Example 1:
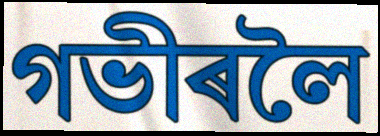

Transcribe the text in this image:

গভীৰলৈ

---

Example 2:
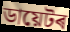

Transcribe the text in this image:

ডায়েটৰ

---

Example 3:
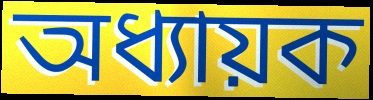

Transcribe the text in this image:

অধ্যায়ক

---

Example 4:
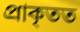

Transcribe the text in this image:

প্ৰাকৃতত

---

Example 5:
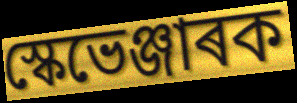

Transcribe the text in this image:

স্কেভেঞ্জাৰক